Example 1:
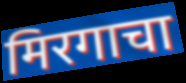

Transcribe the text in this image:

मिरगाचा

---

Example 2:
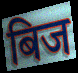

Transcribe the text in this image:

बिज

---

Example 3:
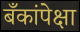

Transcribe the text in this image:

बँकांपेक्षा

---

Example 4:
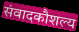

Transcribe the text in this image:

संवादकौशल्य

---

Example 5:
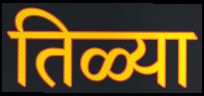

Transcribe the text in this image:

तिळ्या